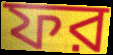
ফর